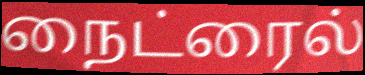
நைட்ரைல்